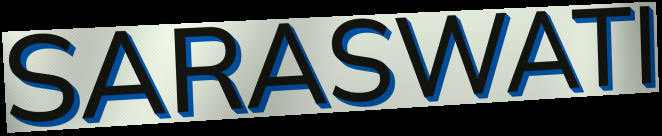
SARASWATI